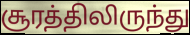
சூரத்திலிருந்து